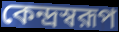
কেন্দ্রস্বরূপ